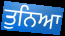
ਤੁਨਿਆ